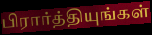
பிரார்த்தியுங்கள்